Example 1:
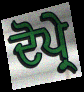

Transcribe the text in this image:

ਦੋਪ੍ਰੇ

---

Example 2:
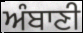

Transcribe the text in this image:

ਅੰਬਾਣੀ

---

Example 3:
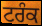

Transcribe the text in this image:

ਟਰੰਕ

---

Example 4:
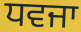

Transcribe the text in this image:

ਧਵਜਾ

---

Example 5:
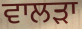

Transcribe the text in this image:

ਵਾਲੜਾ